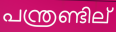
പന്ത്രണ്ടില്